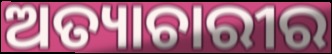
ଅତ୍ୟାଚାରୀର